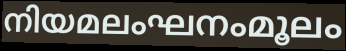
നിയമലംഘനംമൂലം